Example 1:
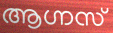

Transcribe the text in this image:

ആഗ്നസ്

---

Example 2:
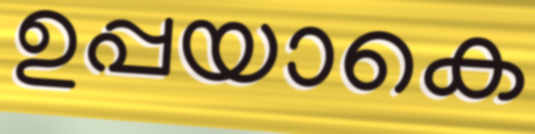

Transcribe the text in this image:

ഉപ്പയാകെ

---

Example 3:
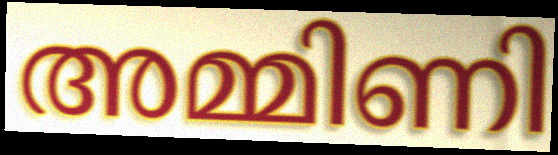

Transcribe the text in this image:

അമ്മിണി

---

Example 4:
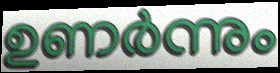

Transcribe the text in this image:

ഉണർന്നും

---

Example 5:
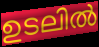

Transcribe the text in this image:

ഉടലിൽ